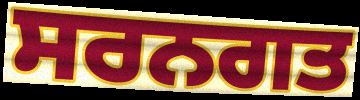
ਸਰਨਗਤ